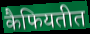
कैफियतीत